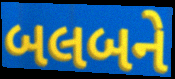
બલબને